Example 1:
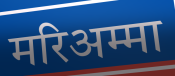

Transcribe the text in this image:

मरिअम्मा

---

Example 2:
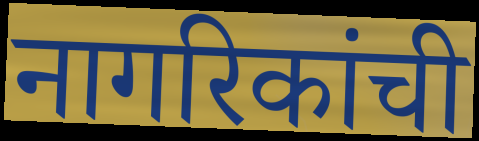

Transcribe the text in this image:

नागरिकांची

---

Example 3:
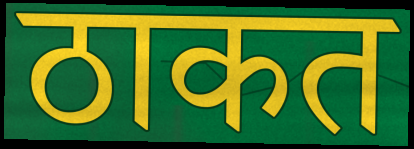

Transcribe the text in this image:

ठाकत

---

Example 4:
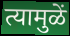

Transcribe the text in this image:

त्यामुळें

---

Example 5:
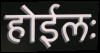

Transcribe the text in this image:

होईलः